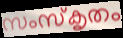
സംസ്കൃതം